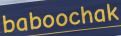
baboochak